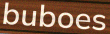
buboes